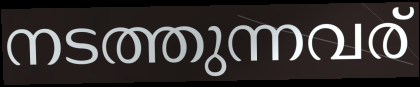
നടത്തുന്നവര്